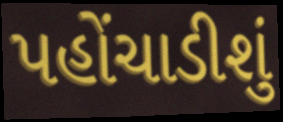
પહોંચાડીશું